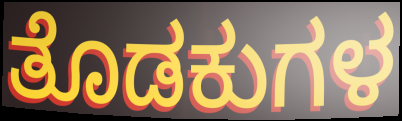
ತೊಡಕುಗಳ